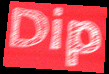
Dip